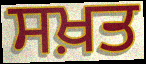
ਸਖ਼ਤ